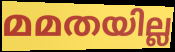
മമതയില്ല